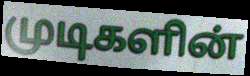
முடிகளின்